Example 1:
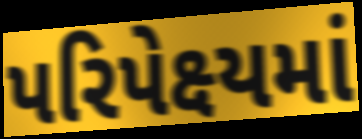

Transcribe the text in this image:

પરિપેક્ષ્યમાં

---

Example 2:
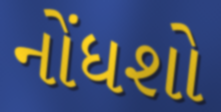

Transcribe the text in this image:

નોંધશો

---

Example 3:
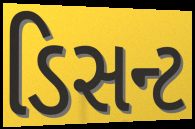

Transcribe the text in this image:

ડિસન્ટ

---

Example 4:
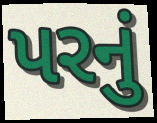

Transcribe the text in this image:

પરનું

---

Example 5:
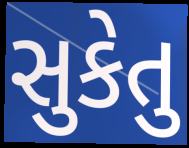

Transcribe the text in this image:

સુકેતુ